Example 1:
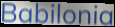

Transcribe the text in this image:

Babilonia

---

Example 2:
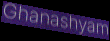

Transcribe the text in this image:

Ghanashyam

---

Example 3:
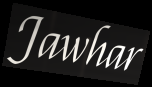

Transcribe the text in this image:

Jawhar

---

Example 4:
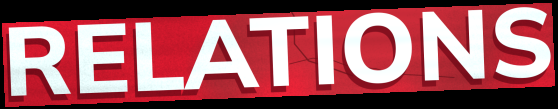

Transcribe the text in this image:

RELATIONS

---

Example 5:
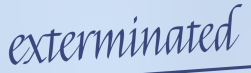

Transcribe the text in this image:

exterminated